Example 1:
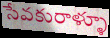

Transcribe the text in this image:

సేవకురాళ్ళూ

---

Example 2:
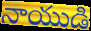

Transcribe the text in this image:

నాయుడి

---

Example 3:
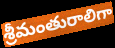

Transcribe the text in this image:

శ్రీమంతురాలిగా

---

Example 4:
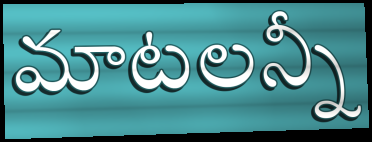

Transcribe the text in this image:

మాటలన్నీ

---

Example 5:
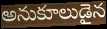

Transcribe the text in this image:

అనుకూలుడైన